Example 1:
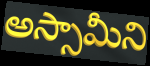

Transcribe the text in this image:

అస్సామీని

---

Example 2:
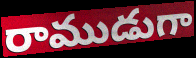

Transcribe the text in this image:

రాముడుగా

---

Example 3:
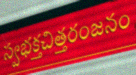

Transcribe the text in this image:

స్వభక్తచిత్తరంజనం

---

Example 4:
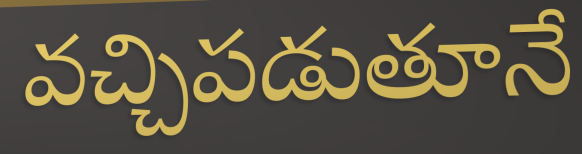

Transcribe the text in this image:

వచ్చిపడుతూనే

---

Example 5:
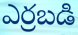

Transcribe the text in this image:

ఎర్రబడి